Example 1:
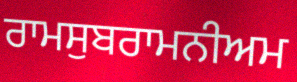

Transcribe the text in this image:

ਰਾਮਸੁਬਰਾਮਨੀਅਮ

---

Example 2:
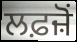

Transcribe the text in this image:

ਲਫ਼ਜ਼ੋਂ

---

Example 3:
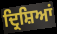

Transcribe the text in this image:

ਦ੍ਰਿਸ਼ਿਆਂ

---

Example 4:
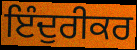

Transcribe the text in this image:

ਇੰਦੁਰੀਕਰ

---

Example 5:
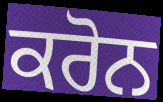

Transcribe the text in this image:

ਕਰੋਨ